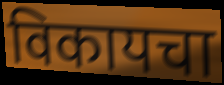
विकायचा